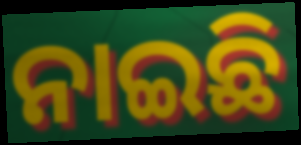
ନାଇଛି